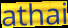
athai